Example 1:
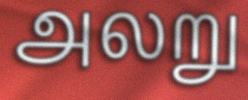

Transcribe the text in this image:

அலறு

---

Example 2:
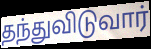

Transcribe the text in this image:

தந்துவிடுவார்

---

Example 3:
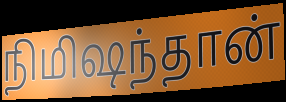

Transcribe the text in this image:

நிமிஷந்தான்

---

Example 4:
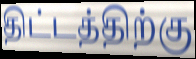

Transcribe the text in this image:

திட்டத்திற்கு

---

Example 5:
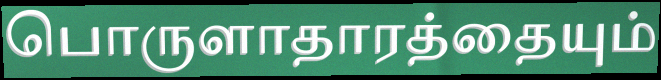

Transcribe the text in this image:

பொருளாதாரத்தையும்